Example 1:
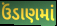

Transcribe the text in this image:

ઉંડાણમાં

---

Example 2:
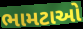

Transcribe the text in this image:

ભામટાઓ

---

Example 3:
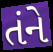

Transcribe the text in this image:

તંને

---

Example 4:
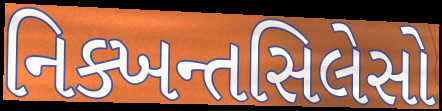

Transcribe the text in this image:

નિક્ખન્તસિલેસો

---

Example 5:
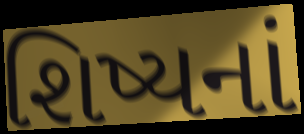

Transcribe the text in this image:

શિષ્યનાં